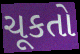
ચૂકતો